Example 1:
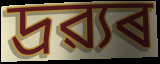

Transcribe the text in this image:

দ্ৰৱ্যৰ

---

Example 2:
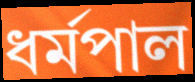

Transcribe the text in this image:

ধৰ্মপাল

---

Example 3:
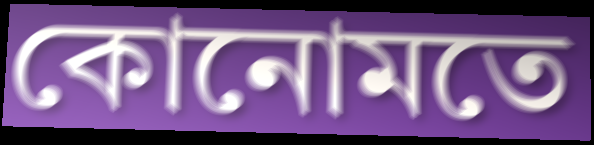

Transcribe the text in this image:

কোনোমতে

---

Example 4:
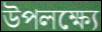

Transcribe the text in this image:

উপলক্ষ্যে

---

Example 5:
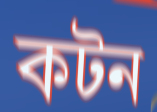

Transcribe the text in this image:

কটন